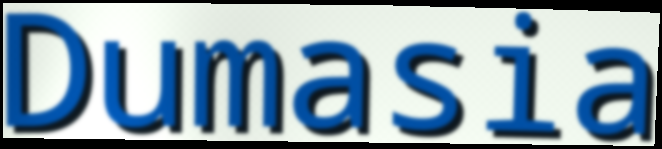
Dumasia